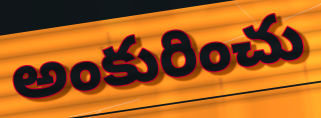
అంకురించు